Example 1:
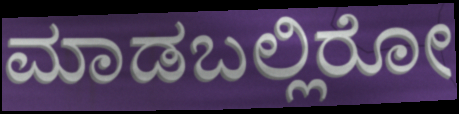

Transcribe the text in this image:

ಮಾಡಬಲ್ಲಿರೋ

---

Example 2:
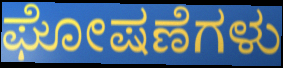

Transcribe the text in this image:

ಘೋಷಣೆಗಳು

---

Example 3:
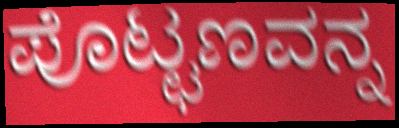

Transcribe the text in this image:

ಪೊಟ್ಟಣವನ್ನ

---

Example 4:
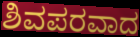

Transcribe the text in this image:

ಶಿವಪರವಾದ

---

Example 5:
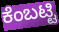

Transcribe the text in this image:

ಕೆಂಬಟ್ಟಿ